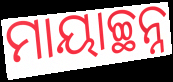
ମାୟାଚ୍ଛନ୍ନ